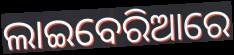
ଲାଇବେରିଆରେ